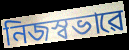
নিজস্বভাৱে